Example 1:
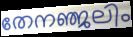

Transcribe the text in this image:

തേനഞ്ജലിം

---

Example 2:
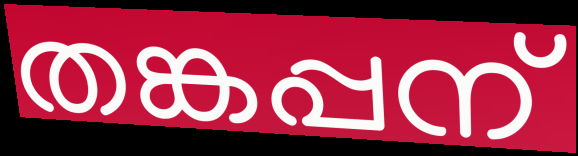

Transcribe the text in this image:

തങ്കപ്പന്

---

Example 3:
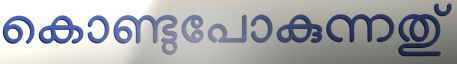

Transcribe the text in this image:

കൊണ്ടുപോകുന്നതു്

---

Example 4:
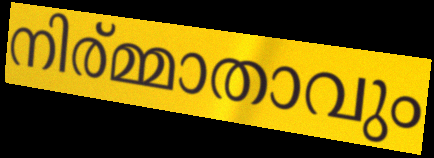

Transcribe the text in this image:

നിര്മ്മാതാവും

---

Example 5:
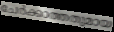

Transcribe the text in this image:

ചേർക്കാത്തതുമായ